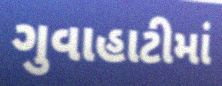
ગુવાહાટીમાં